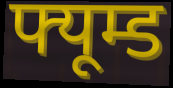
फ्यूम्ड